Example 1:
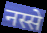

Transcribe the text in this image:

नस्से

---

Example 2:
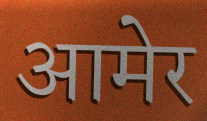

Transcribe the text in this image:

आमेर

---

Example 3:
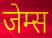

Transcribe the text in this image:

जेम्स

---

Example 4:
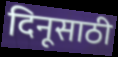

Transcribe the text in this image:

दिनूसाठी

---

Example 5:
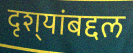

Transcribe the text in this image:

दृश्यांबद्दल